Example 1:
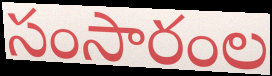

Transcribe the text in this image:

సంసారంల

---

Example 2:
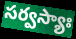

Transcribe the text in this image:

సర్వస్యాః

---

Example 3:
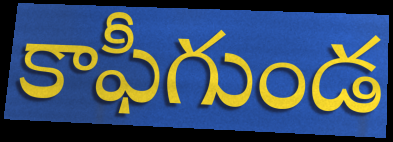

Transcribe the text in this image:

కాఫీగుండ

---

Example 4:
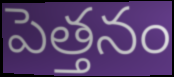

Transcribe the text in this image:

పెత్తనం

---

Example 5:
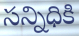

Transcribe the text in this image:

సన్నిధికి